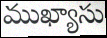
ముఖ్యాసు